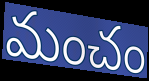
మంచం